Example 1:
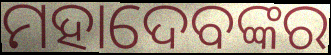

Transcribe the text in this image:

ମହାଦେବଙ୍କର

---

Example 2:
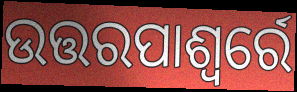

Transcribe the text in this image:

ଉତ୍ତରପାଶ୍ୱର୍ରେ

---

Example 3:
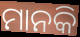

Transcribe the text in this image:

ମାନକି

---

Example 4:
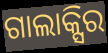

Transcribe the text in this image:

ଗାଲାକ୍ସିର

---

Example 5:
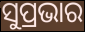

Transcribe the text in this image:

ସୁପ୍ରଭାର